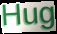
Hug